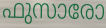
ഫുസാരോ